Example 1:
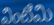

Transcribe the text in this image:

వింటిమి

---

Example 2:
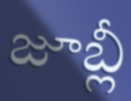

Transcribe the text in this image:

జూబ్లీ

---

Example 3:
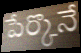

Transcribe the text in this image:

పేర్కొనే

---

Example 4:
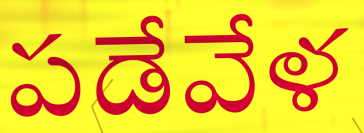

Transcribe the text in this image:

పడేవేళ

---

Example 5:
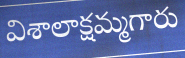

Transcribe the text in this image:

విశాలాక్షమ్మగారు